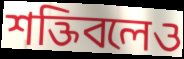
শক্তিবলেও